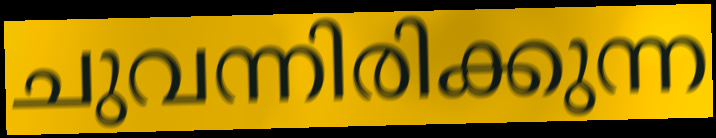
ചുവന്നിരിക്കുന്ന